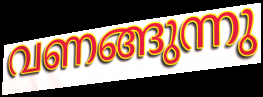
വണങ്ങുന്നു